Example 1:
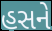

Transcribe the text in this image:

હસને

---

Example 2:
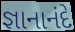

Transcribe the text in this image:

જ્ઞાનાનંદે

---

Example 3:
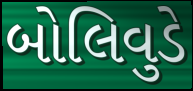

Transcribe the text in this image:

બોલિવુડે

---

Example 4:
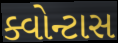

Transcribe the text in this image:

ક્વોન્ટાસ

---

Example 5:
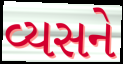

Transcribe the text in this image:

વ્યસને